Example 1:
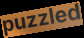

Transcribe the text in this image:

puzzled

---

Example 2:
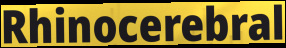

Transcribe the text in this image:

Rhinocerebral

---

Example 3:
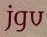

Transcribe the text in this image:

jgu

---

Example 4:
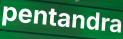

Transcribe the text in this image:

pentandra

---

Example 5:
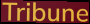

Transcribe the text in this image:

Tribune